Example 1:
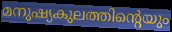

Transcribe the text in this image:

മനുഷ്യകുലത്തിന്റെയും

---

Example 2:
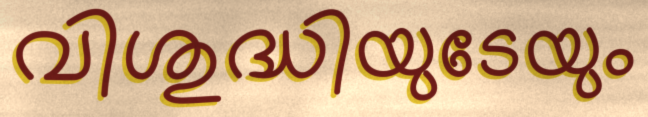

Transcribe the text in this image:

വിശുദ്ധിയുടേയും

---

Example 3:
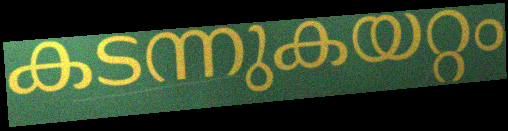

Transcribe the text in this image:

കടന്നുകയറ്റം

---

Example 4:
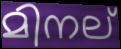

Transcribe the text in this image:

മിനല്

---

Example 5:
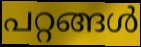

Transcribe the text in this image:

പറ്റങ്ങൾ